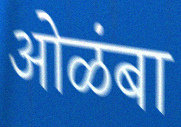
ओळंबा